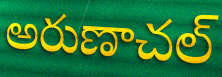
అరుణాచల్